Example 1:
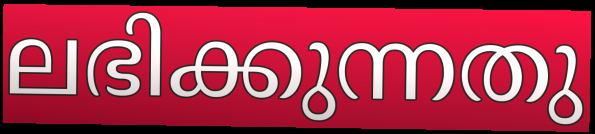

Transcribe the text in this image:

ലഭിക്കുന്നതു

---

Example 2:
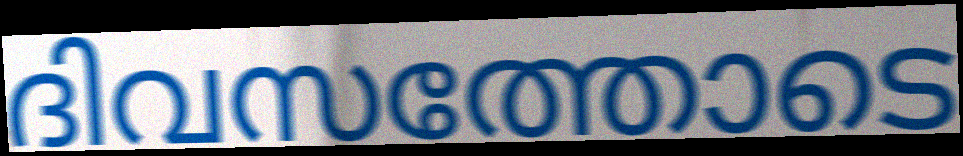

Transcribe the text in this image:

ദിവസത്തോടെ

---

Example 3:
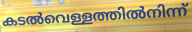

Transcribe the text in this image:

കടൽവെള്ളത്തിൽനിന്ന്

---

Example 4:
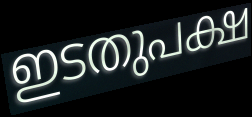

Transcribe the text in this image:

ഇടതുപക്ഷ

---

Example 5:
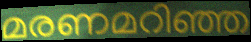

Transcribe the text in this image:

മരണമറിഞ്ഞ